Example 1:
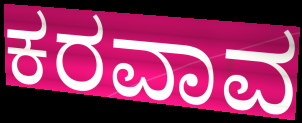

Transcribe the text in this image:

ಕರವಾವ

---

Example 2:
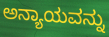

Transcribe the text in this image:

ಅನ್ಯಾಯವನ್ನು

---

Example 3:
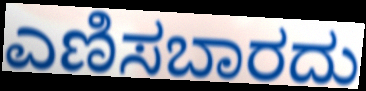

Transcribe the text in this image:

ಎಣಿಸಬಾರದು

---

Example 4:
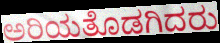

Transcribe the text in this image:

ಅರಿಯತೊಡಗಿದರು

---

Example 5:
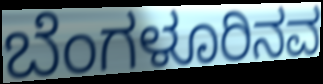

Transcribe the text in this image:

ಬೆಂಗಳೂರಿನವ